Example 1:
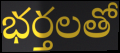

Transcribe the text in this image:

భర్తలతో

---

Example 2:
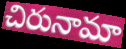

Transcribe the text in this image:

చిరునామా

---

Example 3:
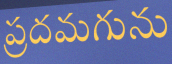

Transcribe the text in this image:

ప్రదమగును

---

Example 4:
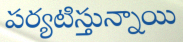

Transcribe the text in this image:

పర్యటిస్తున్నాయి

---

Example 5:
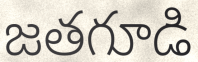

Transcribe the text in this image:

జతగూడి